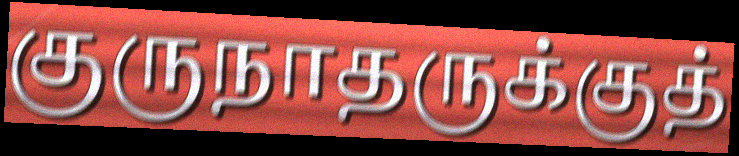
குருநாதருக்குத்